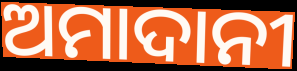
ଅମାଦାନୀ